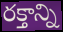
రక్తాన్ని